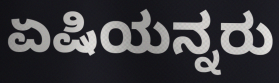
ಏಷಿಯನ್ನರು